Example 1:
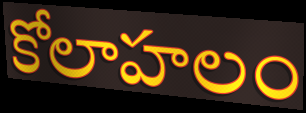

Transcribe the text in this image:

కోలాహలం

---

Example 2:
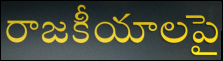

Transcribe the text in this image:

రాజకీయాలపై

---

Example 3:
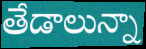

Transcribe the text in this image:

తేడాలున్నా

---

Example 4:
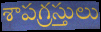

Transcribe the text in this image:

శాపగ్రస్తులు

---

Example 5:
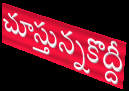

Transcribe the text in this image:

చూస్తున్నకొద్దీ